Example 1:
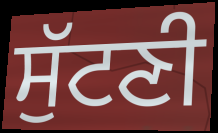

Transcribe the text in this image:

ਸੁੱਟਣੀ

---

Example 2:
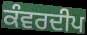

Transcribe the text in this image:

ਕੰਵਰਦੀਪ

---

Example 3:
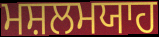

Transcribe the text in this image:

ਮਸ਼ਲਮਯਾਹ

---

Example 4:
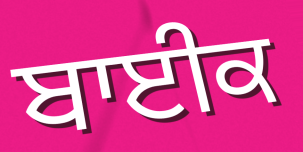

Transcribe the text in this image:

ਬਾਈਕ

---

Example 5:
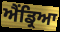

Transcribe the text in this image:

ਐਂਡ੍ਰਿਆ